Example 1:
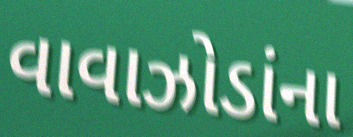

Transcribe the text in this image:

વાવાઝોડાંના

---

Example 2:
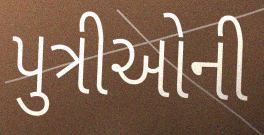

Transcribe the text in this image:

પુત્રીઓની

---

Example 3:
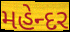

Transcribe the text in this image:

મહેન્દર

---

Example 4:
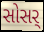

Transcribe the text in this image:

સોસર્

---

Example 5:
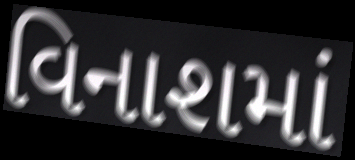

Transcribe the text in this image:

વિનાશમાં